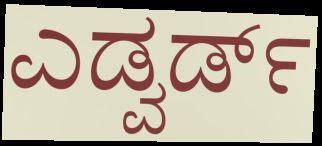
ಎಡ್ವರ್ಡ್